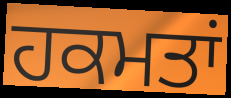
ਹਕਮਤਾਂ